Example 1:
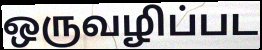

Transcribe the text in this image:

ஒருவழிப்பட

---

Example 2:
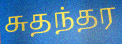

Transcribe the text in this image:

சுதந்தர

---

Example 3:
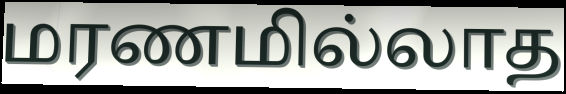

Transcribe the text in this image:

மரணமில்லாத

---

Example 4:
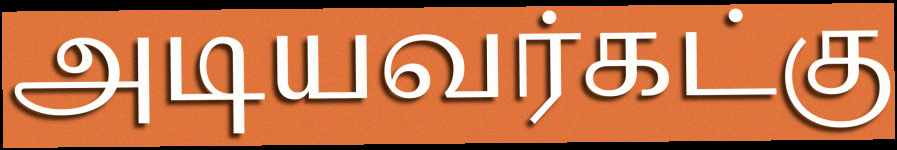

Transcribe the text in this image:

அடியவர்கட்கு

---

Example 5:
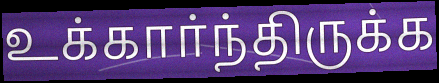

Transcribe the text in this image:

உக்கார்ந்திருக்க